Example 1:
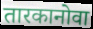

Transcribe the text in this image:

तारकानोवा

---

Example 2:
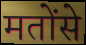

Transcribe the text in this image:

मतोंसे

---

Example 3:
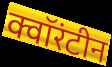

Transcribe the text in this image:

क्वॉरंटीन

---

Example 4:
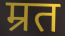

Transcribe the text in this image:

म्रत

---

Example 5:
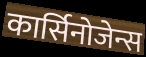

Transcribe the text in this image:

कार्सिनोजेन्स